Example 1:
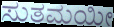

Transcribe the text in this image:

ಸುತಮಯೀ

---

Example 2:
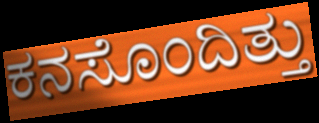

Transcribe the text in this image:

ಕನಸೊಂದಿತ್ತು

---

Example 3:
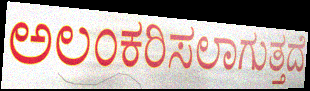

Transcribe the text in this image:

ಅಲಂಕರಿಸಲಾಗುತ್ತದೆ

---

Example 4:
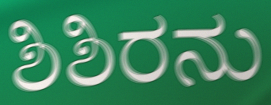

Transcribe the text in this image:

ಶಿಶಿರನು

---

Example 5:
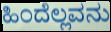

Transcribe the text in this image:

ಹಿಂದೆಲ್ಲವನು